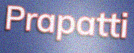
Prapatti